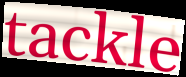
tackle